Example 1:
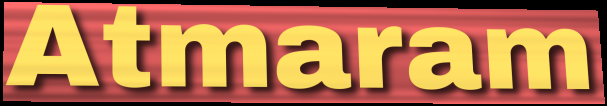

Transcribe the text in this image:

Atmaram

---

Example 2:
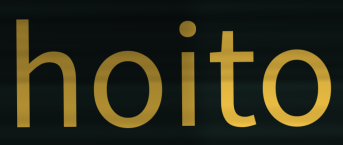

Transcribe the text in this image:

hoito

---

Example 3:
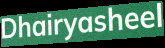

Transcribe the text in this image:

Dhairyasheel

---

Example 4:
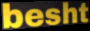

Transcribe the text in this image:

besht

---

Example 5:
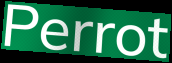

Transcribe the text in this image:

Perrot